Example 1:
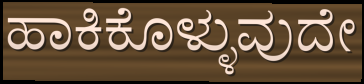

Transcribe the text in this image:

ಹಾಕಿಕೊಳ್ಳುವುದೇ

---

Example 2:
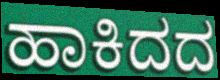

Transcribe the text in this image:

ಹಾಕಿದದ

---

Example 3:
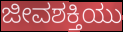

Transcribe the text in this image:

ಜೀವಶಕ್ತಿಯು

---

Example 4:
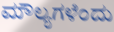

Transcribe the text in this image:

ಮೌಲ್ಯಗಳೆಂದು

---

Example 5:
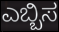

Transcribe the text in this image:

ಎಬ್ಬಿಸ